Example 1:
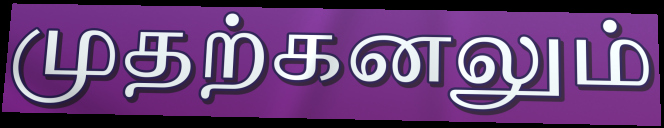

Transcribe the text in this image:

முதற்கனலும்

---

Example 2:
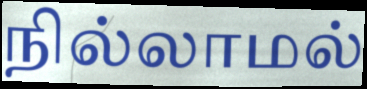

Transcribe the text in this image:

நில்லாமல்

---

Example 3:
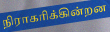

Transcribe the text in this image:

நிராகரிக்கின்றன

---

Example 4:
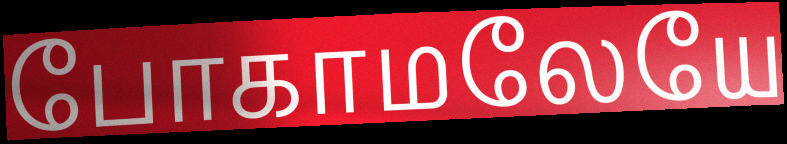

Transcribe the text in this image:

போகாமலேயே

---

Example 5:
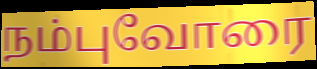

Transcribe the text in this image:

நம்புவோரை